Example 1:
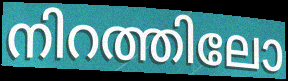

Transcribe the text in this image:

നിറത്തിലോ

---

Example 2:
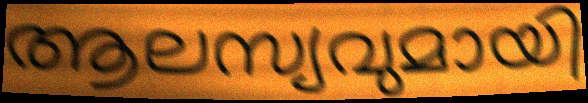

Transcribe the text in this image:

ആലസ്യവുമായി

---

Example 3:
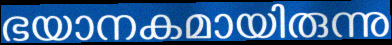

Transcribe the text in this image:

ഭയാനകമായിരുന്നു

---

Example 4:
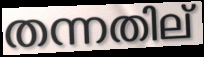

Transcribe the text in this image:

തന്നതില്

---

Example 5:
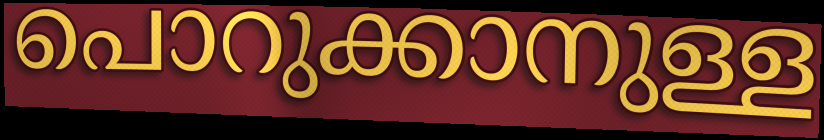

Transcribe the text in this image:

പൊറുക്കാനുള്ള